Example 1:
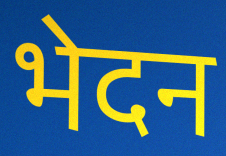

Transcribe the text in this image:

भेदन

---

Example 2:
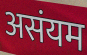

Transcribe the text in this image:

असंयम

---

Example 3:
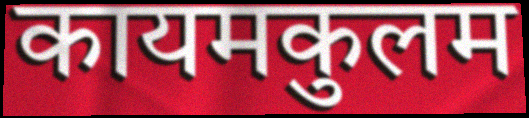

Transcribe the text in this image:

कायमकुलम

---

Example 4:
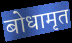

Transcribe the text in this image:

बोधामृत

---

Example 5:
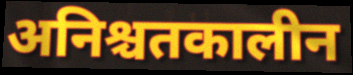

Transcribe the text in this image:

अनिश्चतकालीन